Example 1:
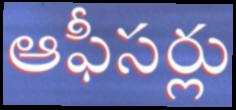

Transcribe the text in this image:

ఆఫీసర్లు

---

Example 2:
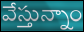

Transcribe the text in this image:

వేస్తున్నాం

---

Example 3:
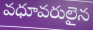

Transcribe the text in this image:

వధూవరులైన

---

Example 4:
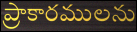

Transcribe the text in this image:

ప్రాకారములను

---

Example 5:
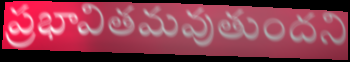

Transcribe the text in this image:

ప్రభావితమవుతుందని